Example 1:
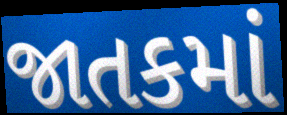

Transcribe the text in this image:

જાતકમાં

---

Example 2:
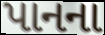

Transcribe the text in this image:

પાનના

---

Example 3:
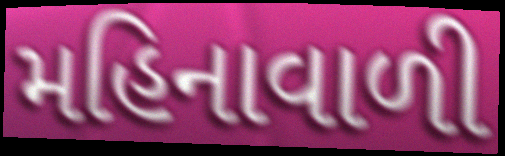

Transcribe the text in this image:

મહિનાવાળી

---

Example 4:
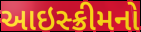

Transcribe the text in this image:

આઇસ્ક્રીમનો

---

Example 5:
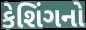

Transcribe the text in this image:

કેશિંગનો